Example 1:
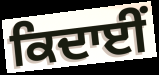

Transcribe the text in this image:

ਕਿਦਾਈਂ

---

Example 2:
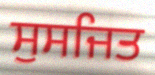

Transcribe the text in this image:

ਸੁਸਜਿਤ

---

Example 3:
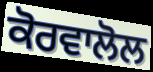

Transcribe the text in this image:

ਕੋਰਵਾਲੋਲ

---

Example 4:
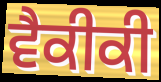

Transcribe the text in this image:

ਵੈਕੀਕੀ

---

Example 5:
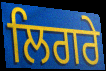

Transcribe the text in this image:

ਲਿਗਰੇ